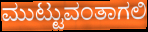
ಮುಟ್ಟುವಂತಾಗಲಿ